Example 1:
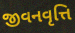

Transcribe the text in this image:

જીવનવૃત્તિ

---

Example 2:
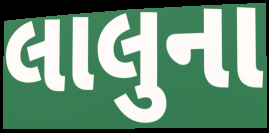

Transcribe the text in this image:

લાલુના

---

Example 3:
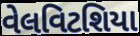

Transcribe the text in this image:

વેલવિટશિયા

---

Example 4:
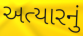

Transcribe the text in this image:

અત્યારનું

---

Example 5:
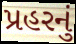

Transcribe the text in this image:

પ્રહરનું